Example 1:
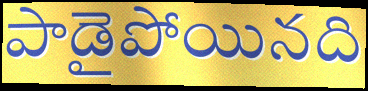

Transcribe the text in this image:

పాడైపోయినది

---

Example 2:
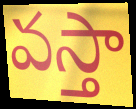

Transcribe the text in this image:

వస్తా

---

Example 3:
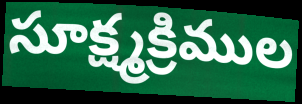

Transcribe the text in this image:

సూక్ష్మక్రిముల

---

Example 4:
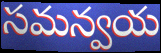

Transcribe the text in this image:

సమన్వయ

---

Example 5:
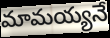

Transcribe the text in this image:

మామయ్యనే